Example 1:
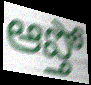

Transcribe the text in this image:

ఆప్తో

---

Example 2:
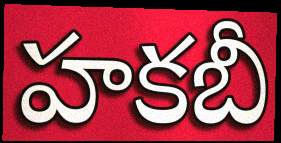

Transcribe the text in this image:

హకబీ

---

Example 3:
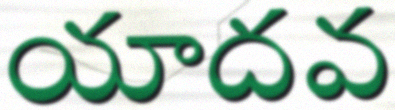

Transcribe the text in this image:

యాదవ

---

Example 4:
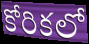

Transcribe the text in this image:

కోరికలో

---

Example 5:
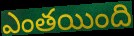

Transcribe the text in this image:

ఎంతయింది